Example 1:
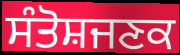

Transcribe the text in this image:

ਸੰਤੋਸ਼ਜਣਕ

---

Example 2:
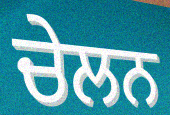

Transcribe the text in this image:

ਚੇਲਨ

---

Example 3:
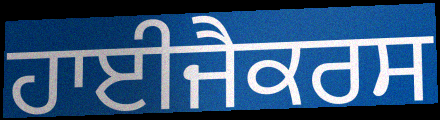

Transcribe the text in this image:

ਹਾਈਜੈਕਰਸ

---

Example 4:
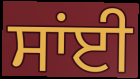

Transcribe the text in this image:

ਸਾਂਈ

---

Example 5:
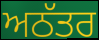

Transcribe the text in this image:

ਅਠੱਤਰ